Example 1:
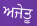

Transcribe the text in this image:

ਅਜੇਤੂ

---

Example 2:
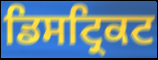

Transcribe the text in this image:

ਡਿਸਟ੍ਰਿਕਟ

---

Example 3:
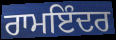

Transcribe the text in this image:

ਰਾਮਇੰਦਰ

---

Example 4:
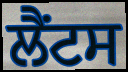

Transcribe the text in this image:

ਲੈਂਟਸ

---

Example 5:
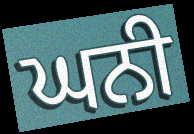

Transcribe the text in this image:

ਘਨੀ